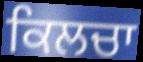
ਕਿਲਚਾ